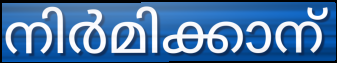
നിർമിക്കാന്